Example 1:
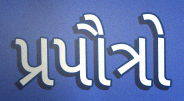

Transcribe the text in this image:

પ્રપૌત્રો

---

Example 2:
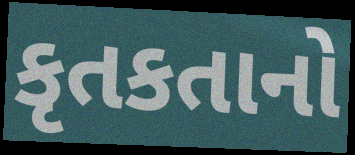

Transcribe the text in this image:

કૃતકતાનો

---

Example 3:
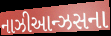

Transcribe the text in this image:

નાઝીઆન્ઝસના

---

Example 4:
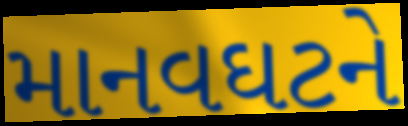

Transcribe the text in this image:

માનવઘટને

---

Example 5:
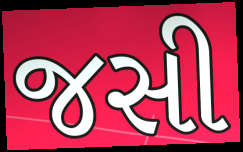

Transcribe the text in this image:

જસી